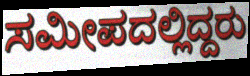
ಸಮೀಪದಲ್ಲಿದ್ದರು